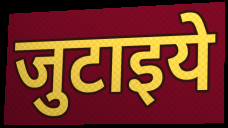
जुटाइये